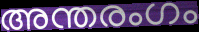
അന്തരംഗം